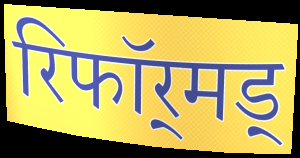
रिफॉर्मड्